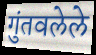
गुंतवलेले